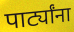
पार्ट्यांना